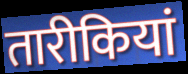
तारीकियां